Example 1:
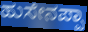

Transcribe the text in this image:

ಹುಸೇನಪ್ಪಾ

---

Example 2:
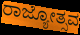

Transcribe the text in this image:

ರಾಜ್ಯೋತ್ಸವ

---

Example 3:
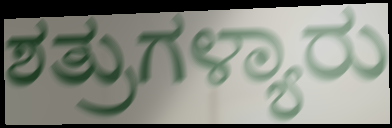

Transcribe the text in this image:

ಶತ್ರುಗಳ್ಯಾರು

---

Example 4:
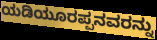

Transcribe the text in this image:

ಯಡಿಯೂರಪ್ಪನವರನ್ನು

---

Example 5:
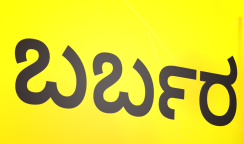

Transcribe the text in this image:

ಬರ್ಬರ